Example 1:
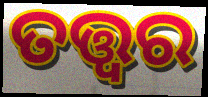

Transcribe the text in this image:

ତତ୍ତ୍ଵର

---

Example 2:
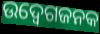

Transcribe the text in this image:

ଉଦ୍ବେଗଜନକ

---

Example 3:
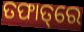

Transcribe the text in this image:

ତଫାତ୍‌ରେ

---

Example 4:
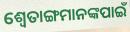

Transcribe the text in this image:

ଶ୍ୱେତାଙ୍ଗମାନଙ୍କପାଇଁ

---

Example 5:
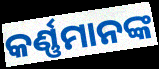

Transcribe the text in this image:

କର୍ଣ୍ଣମାନଙ୍କ